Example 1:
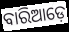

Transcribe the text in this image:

ବାରିଆଡ଼େ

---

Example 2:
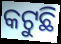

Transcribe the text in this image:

କଟୁଛି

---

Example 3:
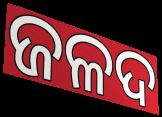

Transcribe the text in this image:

ଜଳଦ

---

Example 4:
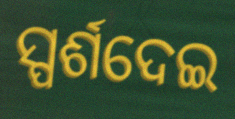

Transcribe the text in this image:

ସ୍ପର୍ଶଦେଇ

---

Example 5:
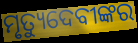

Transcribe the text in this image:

ମୃତ୍ୟୁଦେବୀଙ୍କର